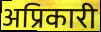
अप्रिकारी